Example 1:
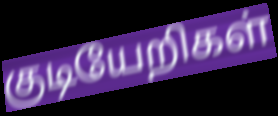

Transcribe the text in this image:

குடியேறிகள்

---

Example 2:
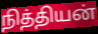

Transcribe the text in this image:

நித்தியன்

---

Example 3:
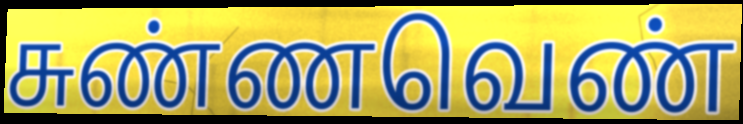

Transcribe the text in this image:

சுண்ணவெண்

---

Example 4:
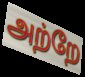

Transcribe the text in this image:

அற்றே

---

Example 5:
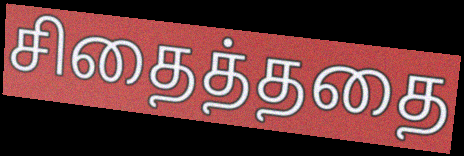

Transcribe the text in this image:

சிதைத்ததை